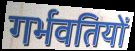
गर्भवतियों